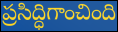
ప్రసిద్ధిగాంచింది